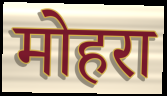
मोहरा